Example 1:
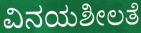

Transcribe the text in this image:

ವಿನಯಶೀಲತೆ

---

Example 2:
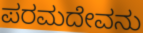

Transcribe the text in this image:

ಪರಮದೇವನು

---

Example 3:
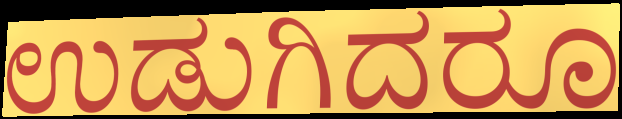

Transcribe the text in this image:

ಉಡುಗಿದರೂ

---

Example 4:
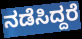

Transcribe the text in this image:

ನಡೆಸಿದ್ದರೆ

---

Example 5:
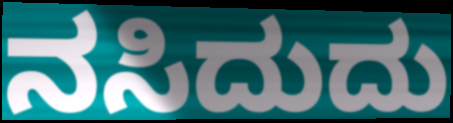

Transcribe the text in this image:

ನಸಿದುದು